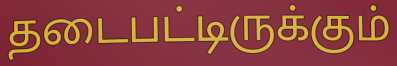
தடைபட்டிருக்கும்